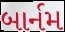
બાર્નમ